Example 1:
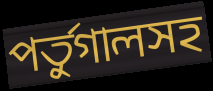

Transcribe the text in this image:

পর্তুগালসহ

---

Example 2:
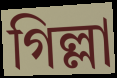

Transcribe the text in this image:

গিল্লা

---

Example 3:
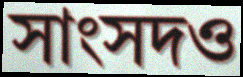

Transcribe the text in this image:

সাংসদও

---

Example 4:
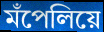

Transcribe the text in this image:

মঁপেলিয়ে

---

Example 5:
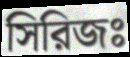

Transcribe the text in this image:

সিরিজঃ